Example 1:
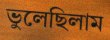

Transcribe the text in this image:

ভুলেছিলাম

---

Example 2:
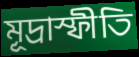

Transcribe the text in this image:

মূদ্রাস্ফীতি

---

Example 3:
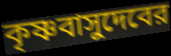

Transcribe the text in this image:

কৃষ্ণবাসুদেবের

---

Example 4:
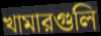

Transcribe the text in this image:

খামারগুলি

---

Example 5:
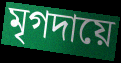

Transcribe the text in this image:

মৃগদায়ে